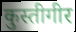
कुस्तीगीर